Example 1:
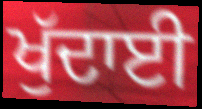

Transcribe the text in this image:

ਖੁੱਦਾਈ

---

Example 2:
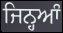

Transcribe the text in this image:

ਜਿਨ੍ਹਆੰ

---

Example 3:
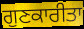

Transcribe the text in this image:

ਗੁਣਕਾਰੀਤਾ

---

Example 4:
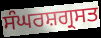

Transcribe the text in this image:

ਸੰਘਰਸ਼ਗ੍ਰਸਤ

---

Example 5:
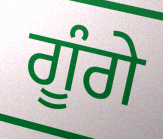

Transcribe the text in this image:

ਗੂੰਗੇ